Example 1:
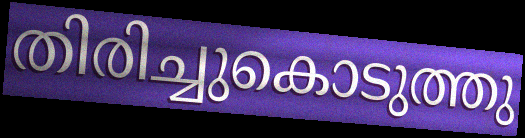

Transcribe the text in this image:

തിരിച്ചുകൊടുത്തു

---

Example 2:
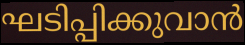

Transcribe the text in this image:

ഘടിപ്പിക്കുവാൻ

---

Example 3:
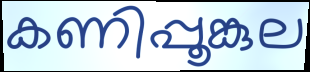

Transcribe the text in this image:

കണിപ്പൂങ്കുല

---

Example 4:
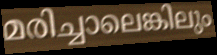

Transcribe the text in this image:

മരിച്ചാലെങ്കിലും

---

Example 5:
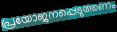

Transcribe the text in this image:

പ്രയോജനപ്പെടുത്തണം